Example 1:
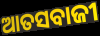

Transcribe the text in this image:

ଆତସବାଜୀ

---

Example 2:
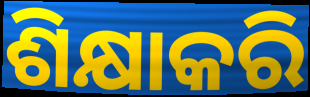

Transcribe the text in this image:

ଶିକ୍ଷାକରି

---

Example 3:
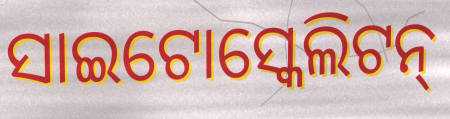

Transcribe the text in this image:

ସାଇଟୋସ୍କେଲିଟନ୍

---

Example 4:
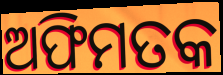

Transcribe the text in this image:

ଅଫିମତକ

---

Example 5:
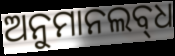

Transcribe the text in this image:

ଅନୁମାନଲବ୍‌ଧ